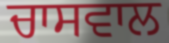
ਚਾਸਵਾਲ